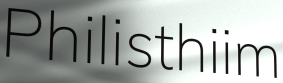
Philisthiim